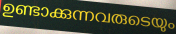
ഉണ്ടാക്കുന്നവരുടെയും